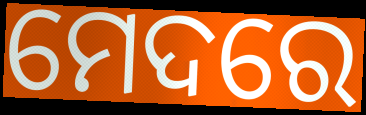
ମେଦରେ